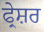
ਫ੍ਰੇਸ਼ਰ